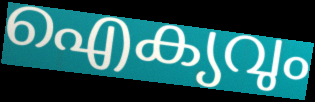
ഐക്യവും